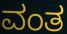
ವಂತ